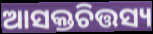
ଆସକ୍ତଚିତ୍ତସ୍ୟ